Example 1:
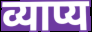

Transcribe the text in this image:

व्याप्य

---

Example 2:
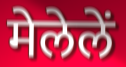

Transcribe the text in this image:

मेलेलें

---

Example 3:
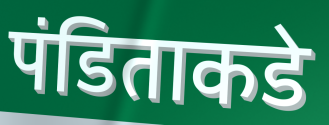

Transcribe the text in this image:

पंडिताकडे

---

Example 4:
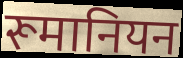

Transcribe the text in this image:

रूमानियन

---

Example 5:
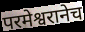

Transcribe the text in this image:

परमेश्वरानेच